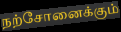
நற்சோனைக்கும்